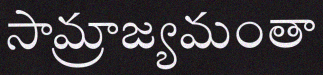
సామ్రాజ్యమంతా